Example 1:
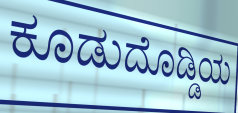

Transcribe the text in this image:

ಕೂಡುದೊಡ್ಡಿಯ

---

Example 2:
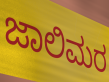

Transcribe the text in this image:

ಜಾಲಿಮರ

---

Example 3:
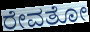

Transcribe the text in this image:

ರೇವತೋ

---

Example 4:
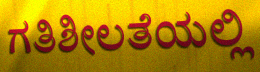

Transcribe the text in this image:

ಗತಿಶೀಲತೆಯಲ್ಲಿ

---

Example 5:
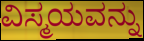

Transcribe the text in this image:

ವಿಸ್ಮಯವನ್ನು